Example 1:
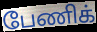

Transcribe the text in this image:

பேணிக்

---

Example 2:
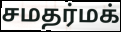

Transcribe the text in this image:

சமதர்மக்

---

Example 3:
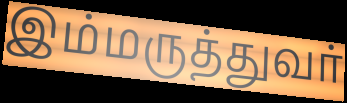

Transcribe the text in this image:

இம்மருத்துவர்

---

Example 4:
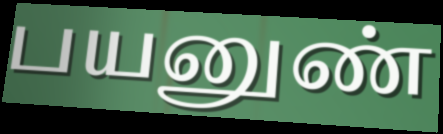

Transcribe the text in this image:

பயனுண்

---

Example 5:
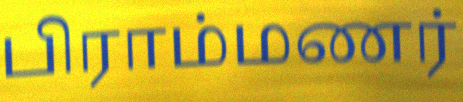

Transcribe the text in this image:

பிராம்மணர்